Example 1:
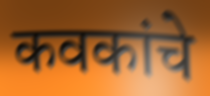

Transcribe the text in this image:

कवकांचे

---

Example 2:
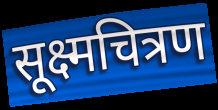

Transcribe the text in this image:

सूक्ष्मचित्रण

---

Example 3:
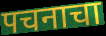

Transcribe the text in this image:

पचनाचा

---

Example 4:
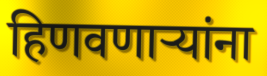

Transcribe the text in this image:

हिणवणाऱ्यांना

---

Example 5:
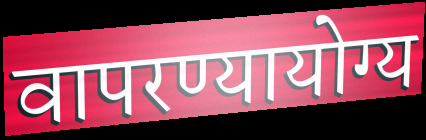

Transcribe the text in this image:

वापरण्यायोग्य